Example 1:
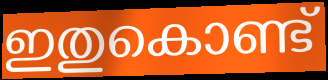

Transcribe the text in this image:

ഇതുകൊണ്ട്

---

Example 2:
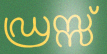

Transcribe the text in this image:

ഡ്രസ്സ്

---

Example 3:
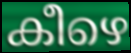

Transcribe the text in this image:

കീഴെ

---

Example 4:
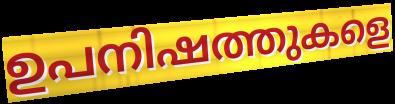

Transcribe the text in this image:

ഉപനിഷത്തുകളെ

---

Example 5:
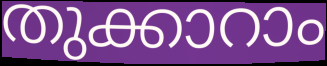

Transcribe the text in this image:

തുക്കാറാം